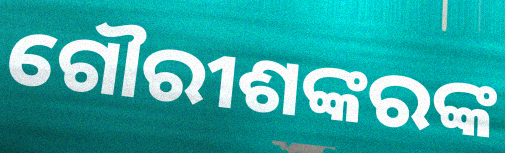
ଗୌରୀଶଙ୍କରଙ୍କ